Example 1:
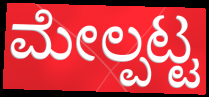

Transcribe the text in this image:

ಮೇಲ್ಪಟ್ಟ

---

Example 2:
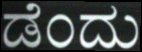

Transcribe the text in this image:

ಡೆಂದು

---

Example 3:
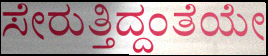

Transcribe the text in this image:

ಸೇರುತ್ತಿದ್ದಂತೆಯೇ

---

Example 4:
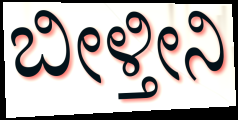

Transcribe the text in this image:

ಬೀಳ್ತೀನಿ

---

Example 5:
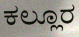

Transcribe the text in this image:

ಕಲ್ಲೂರ